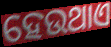
ହେଉଥାଏ